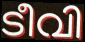
ടീവി